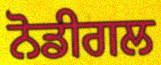
ਨੋਡੀਗਲ